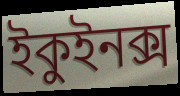
ইকুইনক্স